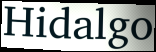
Hidalgo